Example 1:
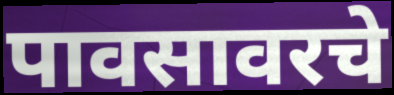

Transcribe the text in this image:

पावसावरचे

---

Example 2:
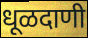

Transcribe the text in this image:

धूळदाणी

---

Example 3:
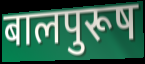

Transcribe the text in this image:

बालपुरूष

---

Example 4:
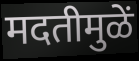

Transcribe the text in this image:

मदतीमुळें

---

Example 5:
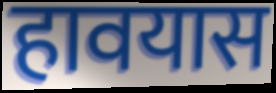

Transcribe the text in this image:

हावयास